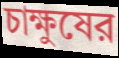
চাক্ষুষের